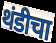
थंडीचा